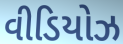
વીડિયોઝ